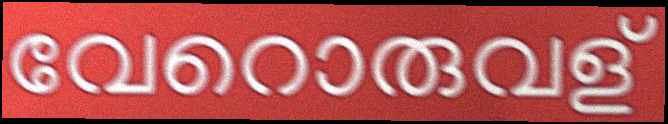
വേറൊരുവള്